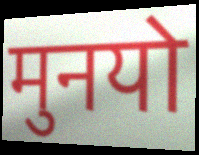
मुनयो